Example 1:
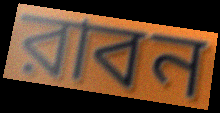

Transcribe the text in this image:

রাবন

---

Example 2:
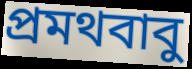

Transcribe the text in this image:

প্রমথবাবু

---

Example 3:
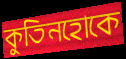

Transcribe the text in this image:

কুতিনহোকে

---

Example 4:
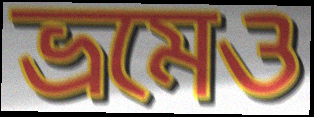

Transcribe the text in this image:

ভ্রমেও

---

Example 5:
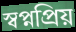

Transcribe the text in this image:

স্বপ্নপ্রিয়